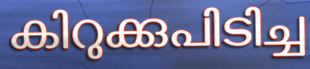
കിറുക്കുപിടിച്ച